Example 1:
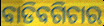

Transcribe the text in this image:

ବାଡିବଗିଚାର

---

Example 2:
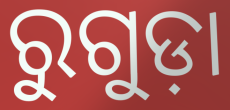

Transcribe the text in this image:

ରୁଗୁଡ଼ା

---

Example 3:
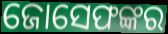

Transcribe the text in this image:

ଜୋସେଫଙ୍କର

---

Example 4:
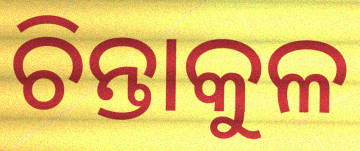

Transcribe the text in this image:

ଚିନ୍ତାକୁଳ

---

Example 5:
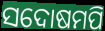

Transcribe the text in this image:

ସଦୋଷମପି